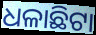
ଧଳାଛିଟା